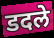
डदले